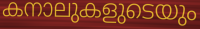
കനാലുകളുടെയും